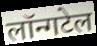
लॉन्गटेल